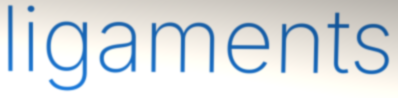
ligaments